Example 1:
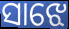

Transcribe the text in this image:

ସାଝେ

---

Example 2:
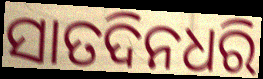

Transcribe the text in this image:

ସାତଦିନଧରି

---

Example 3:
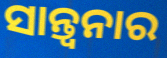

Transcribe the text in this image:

ସାନ୍ତ୍ୱନାର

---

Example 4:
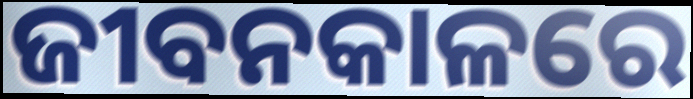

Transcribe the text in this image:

ଜୀବନକାଳରେ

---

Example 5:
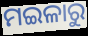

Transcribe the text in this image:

ମଇଳାରୁ